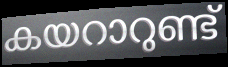
കയറാറുണ്ട്